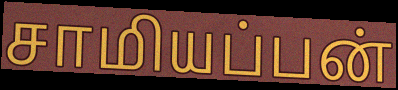
சாமியப்பன்